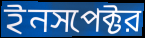
ইনসপেক্টর